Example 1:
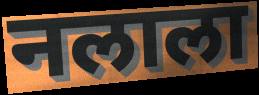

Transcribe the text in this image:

नलाला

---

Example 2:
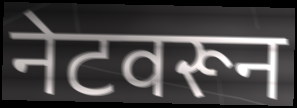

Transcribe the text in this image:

नेटवरून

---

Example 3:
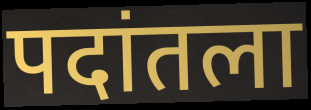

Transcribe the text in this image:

पदांतला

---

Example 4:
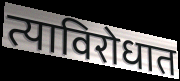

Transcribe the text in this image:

त्याविरोधात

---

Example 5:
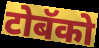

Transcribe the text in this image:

टोबॅको